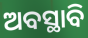
ଅବସ୍ଥାବି